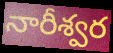
నారీశ్వర